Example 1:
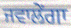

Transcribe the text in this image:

ਜਵਾਲੇਂਗਾ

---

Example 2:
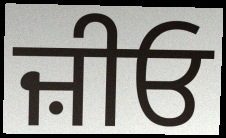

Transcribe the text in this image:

ਜ਼ੀਓ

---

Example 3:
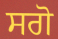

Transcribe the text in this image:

ਸਗੋ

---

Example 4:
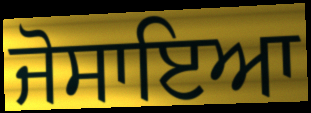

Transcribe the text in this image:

ਜੋਸਾਇਆ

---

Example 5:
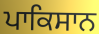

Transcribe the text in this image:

ਪਾਕਿਸਾਨ